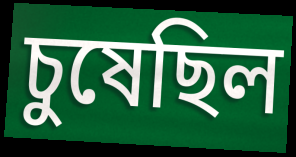
চুষেছিল